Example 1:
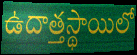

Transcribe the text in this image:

ఉదాత్తస్థాయిలో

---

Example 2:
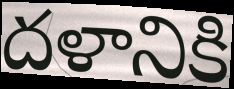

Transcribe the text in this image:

దళానికి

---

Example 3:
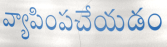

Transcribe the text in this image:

వ్యాపింపచేయడం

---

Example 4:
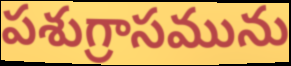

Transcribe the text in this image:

పశుగ్రాసమును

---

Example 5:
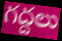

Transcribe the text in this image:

గద్దలు